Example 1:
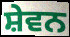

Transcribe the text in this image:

ਸ਼ੇਵਨ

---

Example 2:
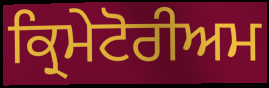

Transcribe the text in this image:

ਕ੍ਰਿਮੇਟੋਰੀਅਮ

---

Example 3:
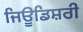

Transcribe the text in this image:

ਜਿਊਡਿਸ਼ਰੀ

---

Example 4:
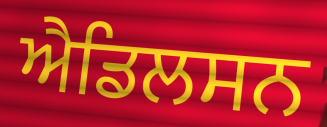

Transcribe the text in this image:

ਐਡਿਲਸਨ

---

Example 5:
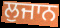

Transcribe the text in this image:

ਲੁਜਾਨ